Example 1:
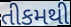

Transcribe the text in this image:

તીકમથી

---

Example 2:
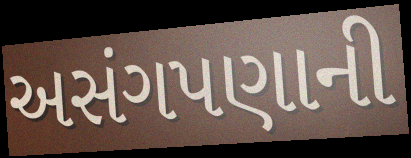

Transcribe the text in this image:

અસંગપણાની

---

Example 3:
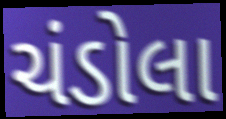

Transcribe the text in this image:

ચંડોલા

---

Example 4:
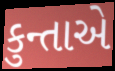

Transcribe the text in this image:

કુન્તાએ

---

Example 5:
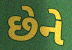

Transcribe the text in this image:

છેને